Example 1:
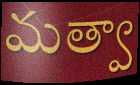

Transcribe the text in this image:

మత్వా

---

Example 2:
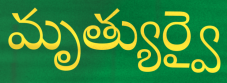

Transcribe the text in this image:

మృత్యుర్వై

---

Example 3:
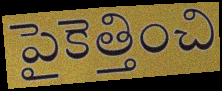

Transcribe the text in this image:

పైకెత్తించి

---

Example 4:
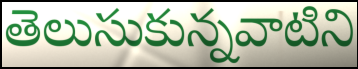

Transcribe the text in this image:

తెలుసుకున్నవాటిని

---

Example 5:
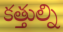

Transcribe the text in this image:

కత్తుల్ని